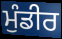
ਮੁੰਡੀਰ